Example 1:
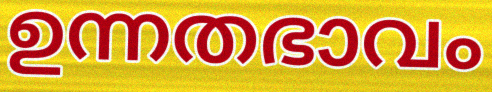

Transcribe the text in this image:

ഉന്നതഭാവം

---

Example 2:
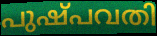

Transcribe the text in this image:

പുഷ്പവതി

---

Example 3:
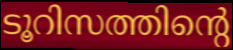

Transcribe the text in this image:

ടൂറിസത്തിന്റെ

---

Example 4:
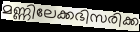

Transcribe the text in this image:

മണ്ണിലേക്കഭിസരിക്ക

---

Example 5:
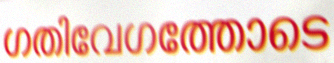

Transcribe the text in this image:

ഗതിവേഗത്തോടെ